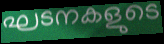
ഘടനകളുടെ